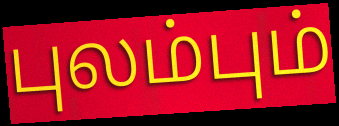
புலம்பும்